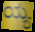
ಯ್ಯ